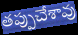
తప్పుచేశావు